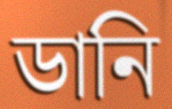
ডানি